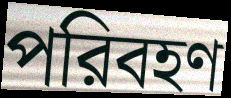
পরিবহণ